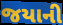
જયાની